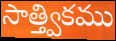
సాత్త్వికము